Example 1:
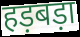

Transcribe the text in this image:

हड़बड़ा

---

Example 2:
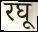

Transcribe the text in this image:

रघू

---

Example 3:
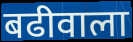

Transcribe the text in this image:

बढीवाला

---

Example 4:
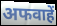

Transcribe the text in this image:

अफवाहें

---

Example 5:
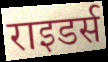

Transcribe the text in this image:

राइडर्स